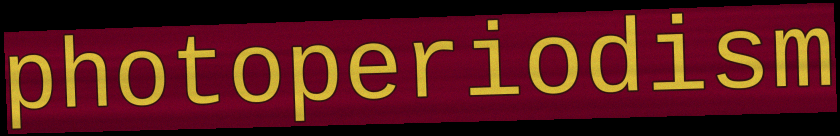
photoperiodism